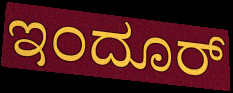
ಇಂದೂರ್